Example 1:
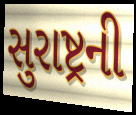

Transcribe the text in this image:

સુરાષ્ટ્રની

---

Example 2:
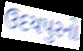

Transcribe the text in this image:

ઉદયપુરનો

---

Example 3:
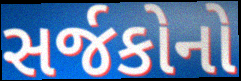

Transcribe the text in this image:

સર્જકોનો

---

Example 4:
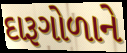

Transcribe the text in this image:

દારૂગોળાને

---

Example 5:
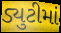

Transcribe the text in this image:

ડ્યુટીમાં